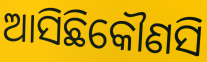
ଆସିଛିକୌଣସି